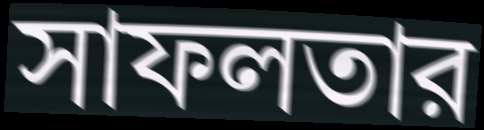
সাফলতার